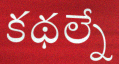
కథల్నే